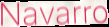
Navarro